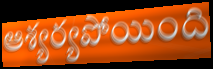
ఆశ్యర్యపోయింది